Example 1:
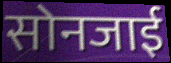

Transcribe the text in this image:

सोनजाई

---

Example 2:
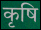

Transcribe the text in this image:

कृषि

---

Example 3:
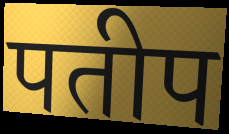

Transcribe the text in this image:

पतीप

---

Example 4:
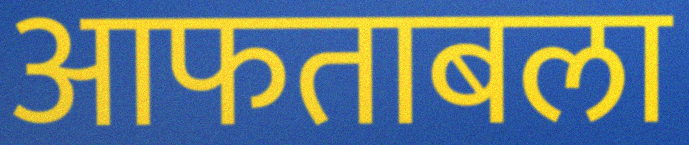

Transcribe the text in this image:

आफताबला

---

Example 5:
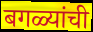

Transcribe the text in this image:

बगळ्यांची